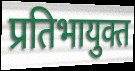
प्रतिभायुक्त